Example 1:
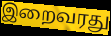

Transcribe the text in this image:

இறைவரது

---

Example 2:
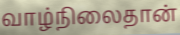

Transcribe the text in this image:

வாழ்நிலைதான்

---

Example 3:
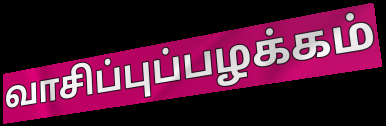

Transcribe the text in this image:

வாசிப்புப்பழக்கம்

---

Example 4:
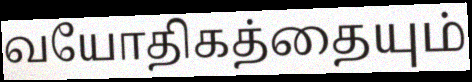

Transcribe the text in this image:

வயோதிகத்தையும்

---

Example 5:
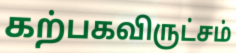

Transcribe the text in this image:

கற்பகவிருட்சம்